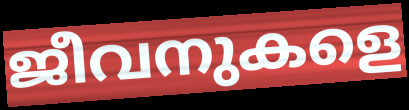
ജീവനുകളെ